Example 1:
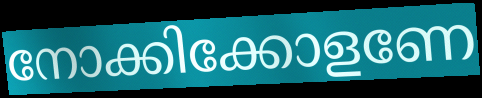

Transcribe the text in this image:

നോക്കിക്കോളണേ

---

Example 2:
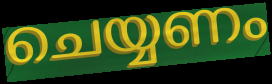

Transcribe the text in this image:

ചെയ്യണം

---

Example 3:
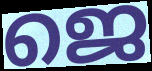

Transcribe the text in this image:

ജെ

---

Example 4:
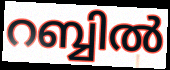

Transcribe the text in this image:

റബ്ബിൽ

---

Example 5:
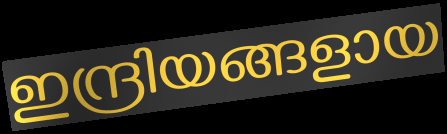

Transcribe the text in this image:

ഇന്ദ്രിയങ്ങളായ